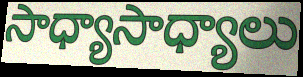
సాధ్యాసాధ్యాలు